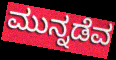
ಮುನ್ನಡೆವ